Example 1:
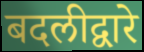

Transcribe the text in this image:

बदलीद्वारे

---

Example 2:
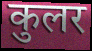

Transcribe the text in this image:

कुलर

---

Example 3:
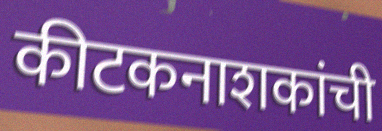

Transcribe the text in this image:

कीटकनाशकांची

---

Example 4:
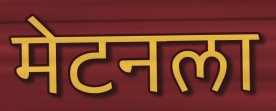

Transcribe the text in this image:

मेटनला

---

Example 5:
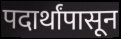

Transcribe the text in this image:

पदार्थांपासून